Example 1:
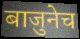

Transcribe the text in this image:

बाजुनेच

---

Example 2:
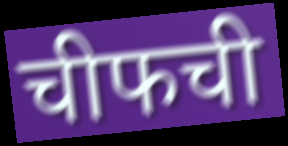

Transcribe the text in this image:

चीफची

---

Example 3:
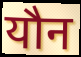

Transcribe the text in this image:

यौन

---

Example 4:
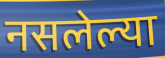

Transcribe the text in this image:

नसलेल्या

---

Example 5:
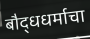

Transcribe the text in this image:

बौद्धधर्माचा